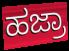
ಹಜ್ರಾ